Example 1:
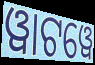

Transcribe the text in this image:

ୱାଟୱେ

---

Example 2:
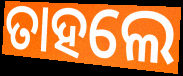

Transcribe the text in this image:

ତାହଲେ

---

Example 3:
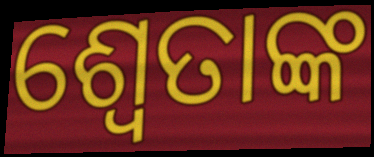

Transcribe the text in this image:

ଶ୍ୱେତାଙ୍କ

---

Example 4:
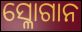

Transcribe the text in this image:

ସ୍ଳୋଗାନ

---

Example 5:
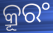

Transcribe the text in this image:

କ୍ରୂରଂ